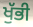
ਖੁੱਭੀ